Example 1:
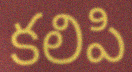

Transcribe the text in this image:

కలిపి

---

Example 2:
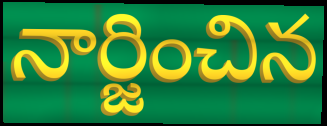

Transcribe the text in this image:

నార్జించిన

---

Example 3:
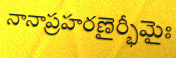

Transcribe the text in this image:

నానాప్రహరణైర్భీమైః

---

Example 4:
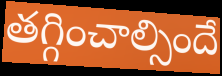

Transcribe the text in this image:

తగ్గించాల్సిందే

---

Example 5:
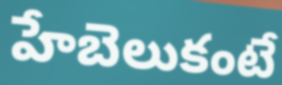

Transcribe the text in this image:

హేబెలుకంటే